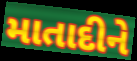
માતાદીને